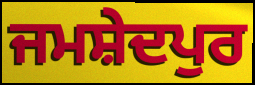
ਜਮਸ਼ੇਦਪੁਰ